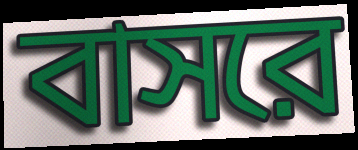
বাসরে